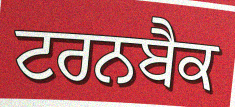
ਟਰਨਬੈਕ